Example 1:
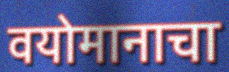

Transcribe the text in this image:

वयोमानाचा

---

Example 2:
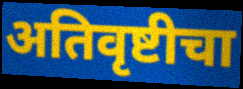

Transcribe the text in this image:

अतिवृष्टीचा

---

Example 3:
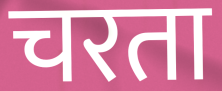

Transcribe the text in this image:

चरता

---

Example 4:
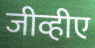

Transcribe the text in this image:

जीव्हीए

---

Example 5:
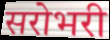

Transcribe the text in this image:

सरोभरी